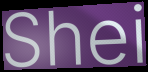
Shei